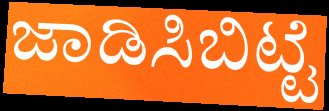
ಜಾಡಿಸಿಬಿಟ್ಟೆ